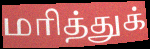
மரித்துக்